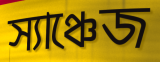
স্যাঞ্চেজ